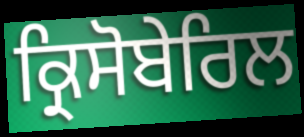
ਕ੍ਰਿਸੋਬੇਰਿਲ